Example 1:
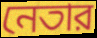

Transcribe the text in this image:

নেতার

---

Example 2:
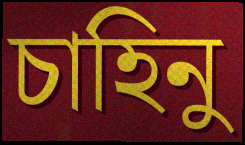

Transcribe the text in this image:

চাহিনু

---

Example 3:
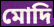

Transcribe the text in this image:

মোদি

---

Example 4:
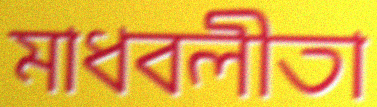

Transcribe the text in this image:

মাধবলীতা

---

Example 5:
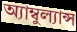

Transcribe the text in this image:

অ্যাম্বুল্যান্স